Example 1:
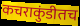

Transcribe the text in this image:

कचराकुंडीतच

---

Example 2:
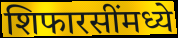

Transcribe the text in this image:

शिफारसींमध्ये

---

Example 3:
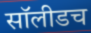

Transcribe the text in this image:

सॉलीडच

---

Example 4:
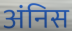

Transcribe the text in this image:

अंनिस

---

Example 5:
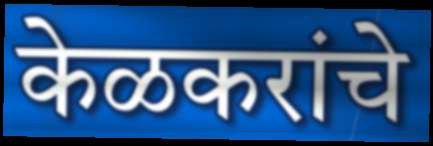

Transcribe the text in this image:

केळकरांचे